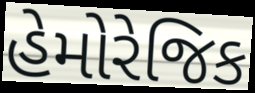
હેમોરેજિક